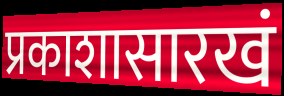
प्रकाशासारखं